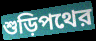
শুড়িপথের